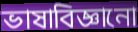
ভাষাবিজ্ঞানো